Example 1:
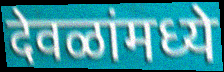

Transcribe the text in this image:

देवळांमध्ये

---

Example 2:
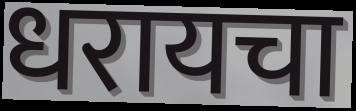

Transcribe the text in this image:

धरायचा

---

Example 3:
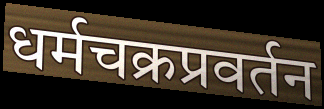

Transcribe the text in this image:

धर्मचक्रप्रवर्तन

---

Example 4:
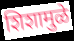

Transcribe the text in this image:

शिशामुळे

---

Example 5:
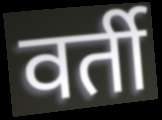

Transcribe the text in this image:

वर्ती